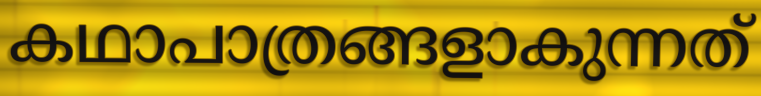
കഥാപാത്രങ്ങളാകുന്നത്